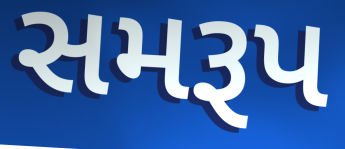
સમરૂપ